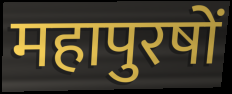
महापुरषों